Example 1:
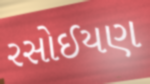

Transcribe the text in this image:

રસોઈયણ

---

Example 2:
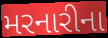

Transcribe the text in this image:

મરનારીના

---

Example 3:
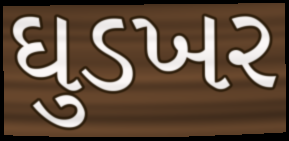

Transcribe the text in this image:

ઘુડખર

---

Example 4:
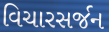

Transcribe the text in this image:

વિચારસર્જન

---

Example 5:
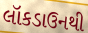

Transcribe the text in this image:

લૉકડાઉનથી